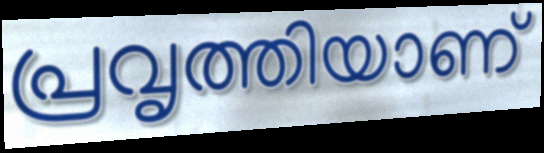
പ്രവൃത്തിയാണ്